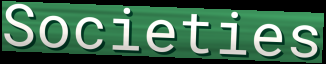
Societies